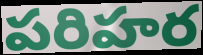
పరిహర